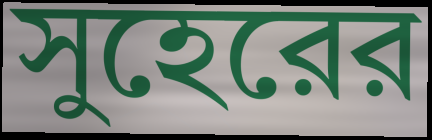
সুহেরের